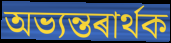
অভ্যন্তৰাৰ্থক